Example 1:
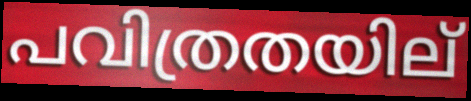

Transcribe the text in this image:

പവിത്രതയില്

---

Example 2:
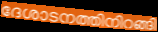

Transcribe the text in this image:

ദേശാടനത്തിനിറങ്ങി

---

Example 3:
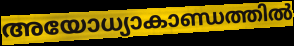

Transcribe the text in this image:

അയോധ്യാകാണ്ഡത്തിൽ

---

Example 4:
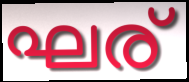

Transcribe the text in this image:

ഘര്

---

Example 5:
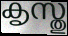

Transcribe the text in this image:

കൃസ്തു